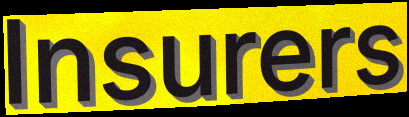
Insurers